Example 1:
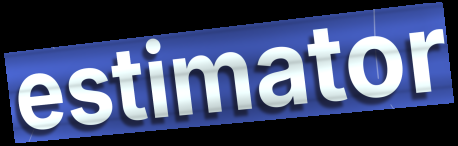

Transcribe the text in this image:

estimator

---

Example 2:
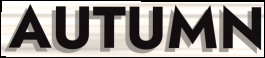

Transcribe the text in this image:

AUTUMN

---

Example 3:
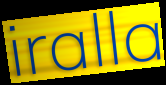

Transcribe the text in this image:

iralla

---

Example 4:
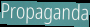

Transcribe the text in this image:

Propaganda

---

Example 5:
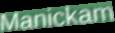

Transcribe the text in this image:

Manickam